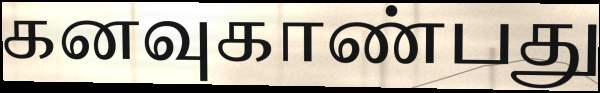
கனவுகாண்பது